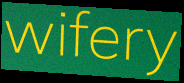
wifery